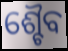
ଶ୍ଚୈବ